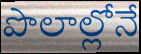
పొలాల్లోనే